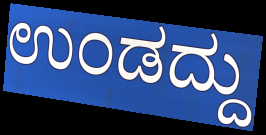
ಉಂಡದ್ದು